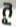
గై